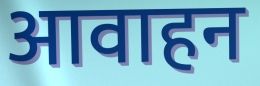
आवाहन